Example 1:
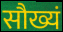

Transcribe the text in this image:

सौख्यं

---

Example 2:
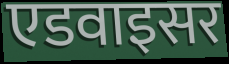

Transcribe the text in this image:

एडवाइसर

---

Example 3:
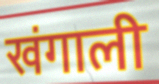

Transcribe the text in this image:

खंगाली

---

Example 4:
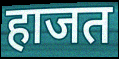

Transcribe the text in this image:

हाजत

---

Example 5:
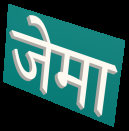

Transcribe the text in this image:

जेमा